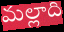
మల్లాది